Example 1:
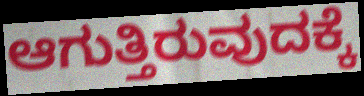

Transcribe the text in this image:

ಆಗುತ್ತಿರುವುದಕ್ಕೆ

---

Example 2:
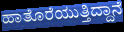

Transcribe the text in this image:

ಹಾತೊರೆಯುತ್ತಿದ್ದಾನೆ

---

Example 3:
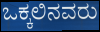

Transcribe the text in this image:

ಒಕ್ಕಲಿನವರು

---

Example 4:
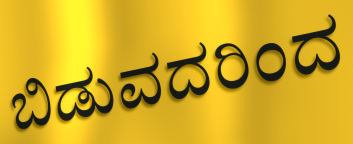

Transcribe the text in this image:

ಬಿಡುವದರಿಂದ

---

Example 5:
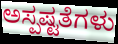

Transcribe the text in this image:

ಅಸ್ಪಷ್ಟತೆಗಳು